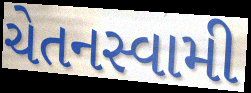
ચેતનસ્વામી